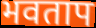
भवताप